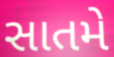
સાતમે